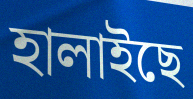
হালাইছে